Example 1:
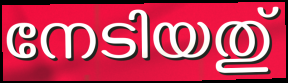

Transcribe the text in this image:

നേടിയതു്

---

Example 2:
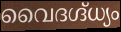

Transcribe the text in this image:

വൈദഗ്ദ്ധ്യം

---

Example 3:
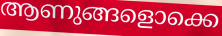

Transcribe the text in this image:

ആണുങ്ങളൊക്കെ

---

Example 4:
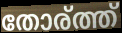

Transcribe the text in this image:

തോര്ത്ത്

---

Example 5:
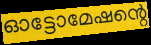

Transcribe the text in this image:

ഓട്ടോമേഷന്റെ